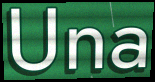
Una